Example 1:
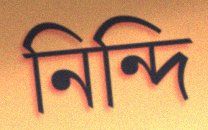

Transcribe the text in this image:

নিন্দি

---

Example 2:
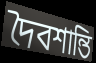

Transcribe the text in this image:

দৈবশান্তি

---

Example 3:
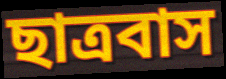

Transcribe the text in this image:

ছাত্রবাস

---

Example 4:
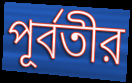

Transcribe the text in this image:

পূর্বতীর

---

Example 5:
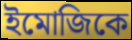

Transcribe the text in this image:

ইমোজিকে